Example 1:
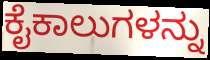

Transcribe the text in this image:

ಕೈಕಾಲುಗಳನ್ನು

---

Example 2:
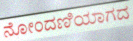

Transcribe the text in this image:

ನೋಂದಣಿಯಾಗದ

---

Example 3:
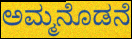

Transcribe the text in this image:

ಅಮ್ಮನೊಡನೆ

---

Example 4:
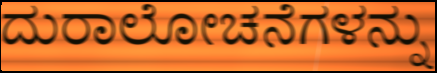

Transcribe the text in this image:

ದುರಾಲೋಚನೆಗಳನ್ನು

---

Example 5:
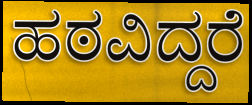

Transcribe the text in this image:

ಹಠವಿದ್ದರೆ